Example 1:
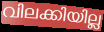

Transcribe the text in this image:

വിലക്കിയില്ല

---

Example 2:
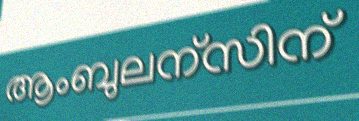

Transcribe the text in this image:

ആംബുലന്സിന്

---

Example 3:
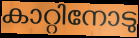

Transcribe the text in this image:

കാറ്റിനോടു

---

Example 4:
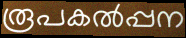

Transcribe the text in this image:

രൂപകൽപ്പന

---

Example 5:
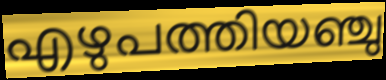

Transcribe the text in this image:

എഴുപത്തിയഞ്ചു